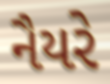
નૈયરે